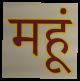
महूं